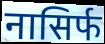
नासिर्फ